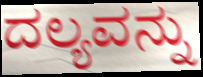
ದಲ್ಯವನ್ನು